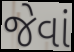
જેવાં